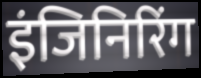
इंजिनिरिंग